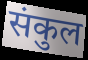
संकुल